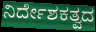
ನಿರ್ದೇಶಕತ್ವದ